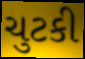
ચુટકી